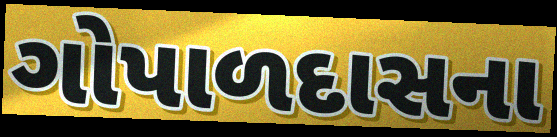
ગોપાળદાસના